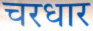
चरधार